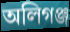
অলিগঞ্জ